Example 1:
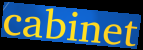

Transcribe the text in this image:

cabinet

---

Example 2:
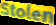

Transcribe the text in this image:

Stolen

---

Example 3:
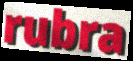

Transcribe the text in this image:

rubra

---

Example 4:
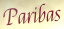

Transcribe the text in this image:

Paribas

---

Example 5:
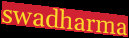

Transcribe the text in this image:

swadharma